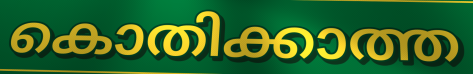
കൊതിക്കാത്ത